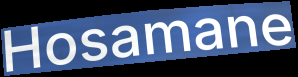
Hosamane